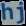
hj